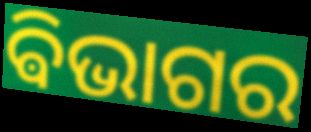
ଵିଭାଗର